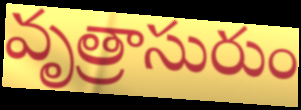
వృత్రాసురుం